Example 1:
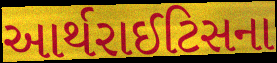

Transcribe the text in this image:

આર્થરાઈટિસના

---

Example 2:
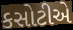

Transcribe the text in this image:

કસોટીએ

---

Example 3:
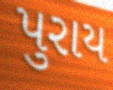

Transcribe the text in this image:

પુરાય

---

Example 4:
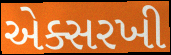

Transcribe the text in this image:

એક્સરખી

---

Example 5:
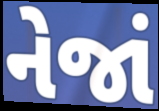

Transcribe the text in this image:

નેજાં